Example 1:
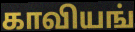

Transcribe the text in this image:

காவியங்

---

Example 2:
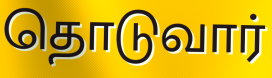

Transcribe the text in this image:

தொடுவார்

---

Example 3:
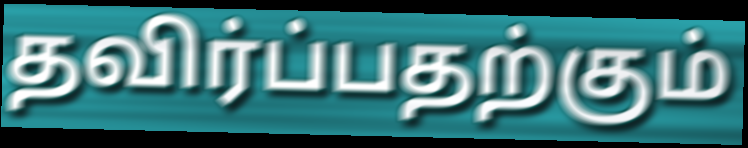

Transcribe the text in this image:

தவிர்ப்பதற்கும்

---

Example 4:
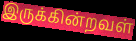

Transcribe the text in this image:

இருக்கின்றவள்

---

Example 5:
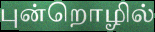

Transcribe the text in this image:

புன்றொழில்